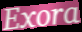
Exora